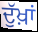
ਦੁੱਖ਼ਾਂ